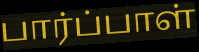
பார்ப்பாள்